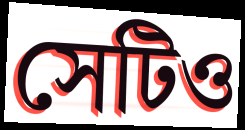
সেটিও